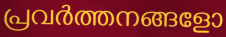
പ്രവർത്തനങ്ങളോ